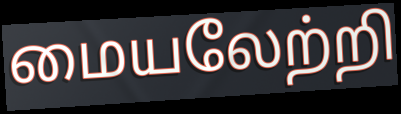
மையலேற்றி